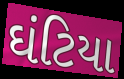
ઘંટિયા